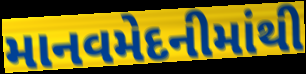
માનવમેદનીમાંથી